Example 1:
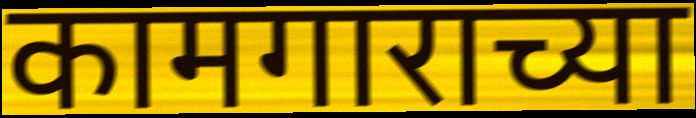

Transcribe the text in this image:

कामगाराच्या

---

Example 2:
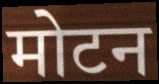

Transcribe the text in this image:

मोटन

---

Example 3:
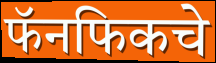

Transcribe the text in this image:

फॅनफिकचे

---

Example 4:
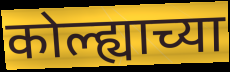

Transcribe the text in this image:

कोल्ह्याच्या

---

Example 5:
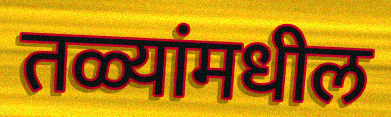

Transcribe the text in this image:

तळ्यांमधील